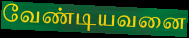
வேண்டியவனை